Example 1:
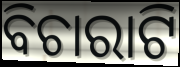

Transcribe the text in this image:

ବିଚାରାଟି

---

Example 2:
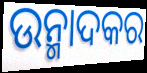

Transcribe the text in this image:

ଉନ୍ମାଦକର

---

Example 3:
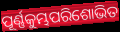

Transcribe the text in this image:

ପୂର୍ଣ୍ଣକୁମ୍ଭପରିଶୋଭିତ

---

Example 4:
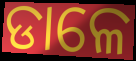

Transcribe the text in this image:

ଡାଳେ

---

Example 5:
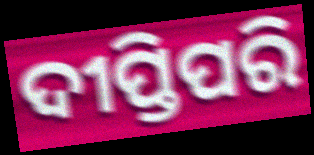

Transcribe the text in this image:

ଦୀପ୍ତିପରି